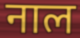
नाल